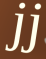
jj